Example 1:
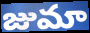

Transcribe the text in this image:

జుమా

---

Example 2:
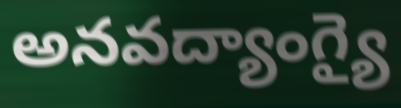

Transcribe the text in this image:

అనవద్యాంగ్యై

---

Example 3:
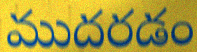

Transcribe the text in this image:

ముదరడం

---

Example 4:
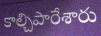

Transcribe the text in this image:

కాల్చిపారేశారు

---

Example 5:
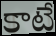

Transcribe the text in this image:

కాటే